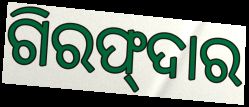
ଗିରଫ୍‍ଦାର